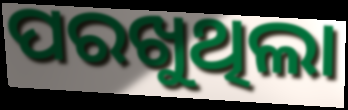
ପରଖୁଥିଲା